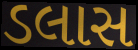
ડલાસ